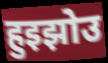
हुइझोउ